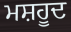
ਮਸ਼ਹੂਦ